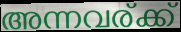
അന്നവര്ക്ക്